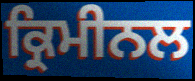
ਕ੍ਰਿਮੀਨਲ